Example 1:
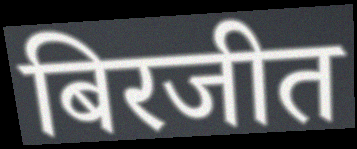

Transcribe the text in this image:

बिरजीत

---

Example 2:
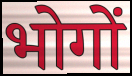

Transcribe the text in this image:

भोगों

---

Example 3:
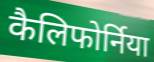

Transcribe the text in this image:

कैलिफोर्निया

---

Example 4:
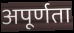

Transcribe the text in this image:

अपूर्णता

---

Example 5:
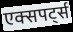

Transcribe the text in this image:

एक्सपर्ट्स